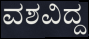
ವಶವಿದ್ದ